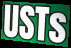
USTs